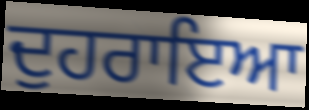
ਦੁਹਰਾਇਆ